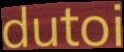
dutoi